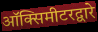
ऑक्सिमीटरद्वारे